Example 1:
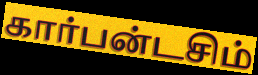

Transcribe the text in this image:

கார்பன்டசிம்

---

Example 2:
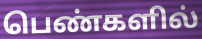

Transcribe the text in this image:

பெண்களில்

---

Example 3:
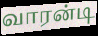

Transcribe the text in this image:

வாரன்டி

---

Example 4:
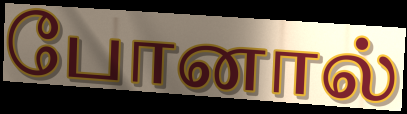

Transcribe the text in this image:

போனால்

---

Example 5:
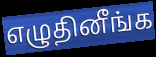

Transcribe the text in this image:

எழுதினீங்க